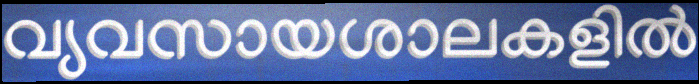
വ്യവസായശാലകളിൽ